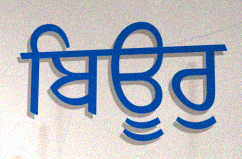
ਬਿਊਰੁ